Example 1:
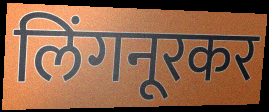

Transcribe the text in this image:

लिंगनूरकर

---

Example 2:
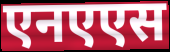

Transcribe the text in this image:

एनएएस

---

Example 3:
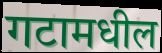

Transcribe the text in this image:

गटामधील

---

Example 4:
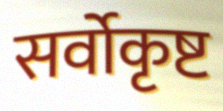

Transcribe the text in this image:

सर्वोकृष्ट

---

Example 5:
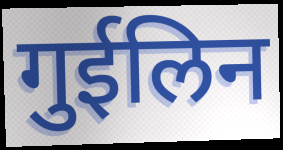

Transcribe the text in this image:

गुईलिन